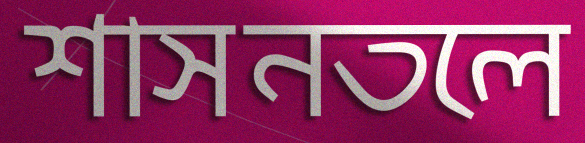
শাসনতলে